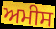
ਅਮੀਸ